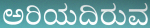
ಅರಿಯದಿರುವ